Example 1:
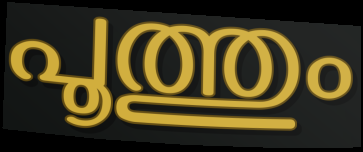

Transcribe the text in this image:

പൂത്തും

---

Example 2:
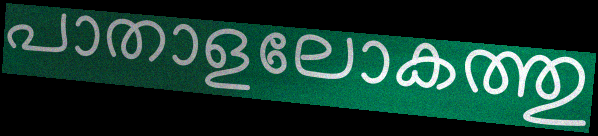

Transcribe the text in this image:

പാതാളലോകത്തു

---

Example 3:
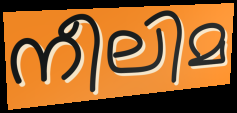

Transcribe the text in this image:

നീലിമ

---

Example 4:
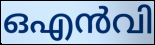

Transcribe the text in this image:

ഒഎൻവി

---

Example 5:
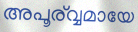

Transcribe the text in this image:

അപൂര്വ്വമായേ